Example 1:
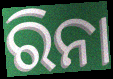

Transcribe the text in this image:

ରିନା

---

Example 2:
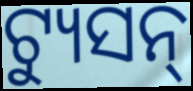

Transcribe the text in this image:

ଟ୍ୟୁସନ୍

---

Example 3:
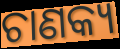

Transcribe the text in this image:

ଚାଣକ୍ଯ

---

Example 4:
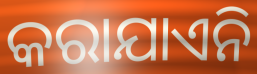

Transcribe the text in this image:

କରାଯାଏନି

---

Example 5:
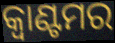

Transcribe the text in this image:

କ୍ୱାଣ୍ଟମର